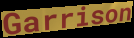
Garrison